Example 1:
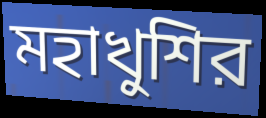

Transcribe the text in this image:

মহাখুশির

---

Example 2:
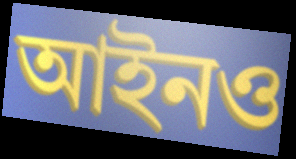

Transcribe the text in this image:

আইনও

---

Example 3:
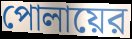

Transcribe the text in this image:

পোলায়ের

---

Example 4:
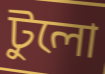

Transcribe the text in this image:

টুলো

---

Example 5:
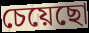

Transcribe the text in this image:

চেয়েছো